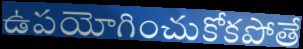
ఉపయోగించుకోకపోతే